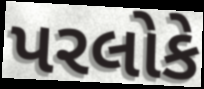
પરલોકે